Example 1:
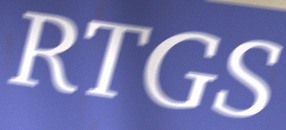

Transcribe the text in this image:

RTGS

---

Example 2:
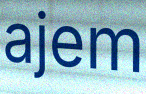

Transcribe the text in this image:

ajem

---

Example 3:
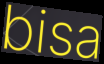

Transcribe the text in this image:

bisa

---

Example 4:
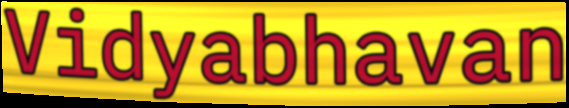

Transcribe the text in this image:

Vidyabhavan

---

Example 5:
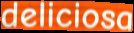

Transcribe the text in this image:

deliciosa